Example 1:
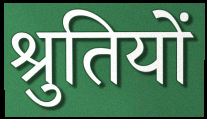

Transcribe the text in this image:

श्रुतियों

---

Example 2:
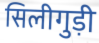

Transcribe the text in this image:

सिलीगुड़ी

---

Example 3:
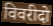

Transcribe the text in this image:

विवरीदो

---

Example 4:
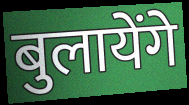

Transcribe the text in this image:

बुलायेंगे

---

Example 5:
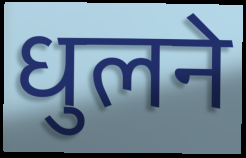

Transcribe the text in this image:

धुलने